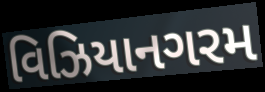
વિઝિયાનગરમ